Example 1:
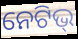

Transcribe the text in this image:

ନେଟିଭ୍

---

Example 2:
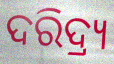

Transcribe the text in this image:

ଦରିଦ୍ର୍ୟ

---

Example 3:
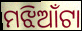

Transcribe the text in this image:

ମଝିଆଁଟା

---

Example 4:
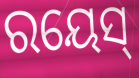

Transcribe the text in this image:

ରୟେସ୍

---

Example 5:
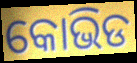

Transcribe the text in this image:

କୋଭିଡ